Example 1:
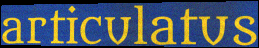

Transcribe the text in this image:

articulatus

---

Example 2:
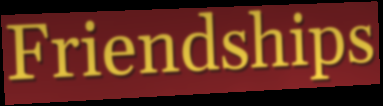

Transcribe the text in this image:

Friendships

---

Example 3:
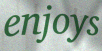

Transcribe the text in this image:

enjoys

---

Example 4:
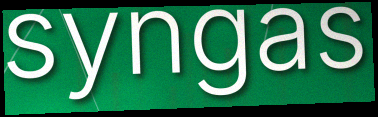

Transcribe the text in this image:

syngas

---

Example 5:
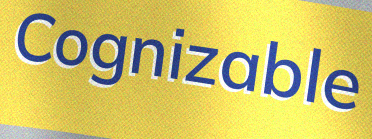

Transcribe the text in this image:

Cognizable